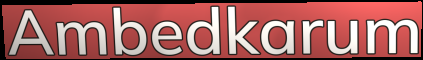
Ambedkarum